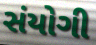
સંયોગી